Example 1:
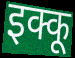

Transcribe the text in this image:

इक्कू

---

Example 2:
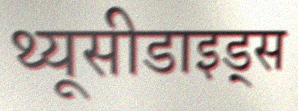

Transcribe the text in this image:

थ्यूसीडाइड्स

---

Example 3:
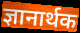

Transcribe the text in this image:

ज्ञानार्थक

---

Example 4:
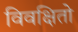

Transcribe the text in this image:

विवक्षितो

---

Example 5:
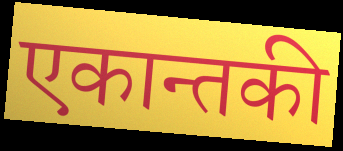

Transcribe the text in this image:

एकान्तकी